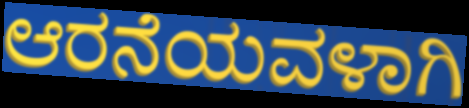
ಆರನೆಯವಳಾಗಿ